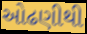
ઓઢણીથી